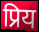
प्रिय